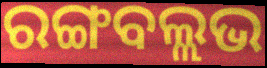
ରଙ୍ଗବଲ୍ଲଭ